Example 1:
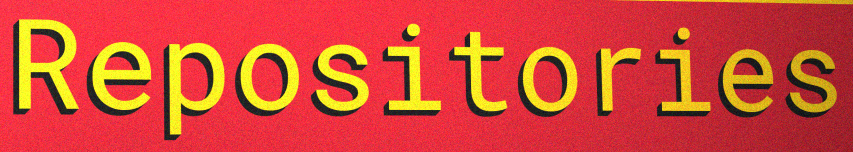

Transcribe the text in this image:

Repositories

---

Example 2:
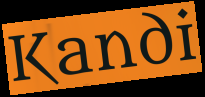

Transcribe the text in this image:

Kandi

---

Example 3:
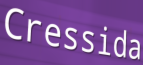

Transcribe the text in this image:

Cressida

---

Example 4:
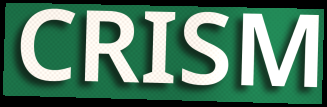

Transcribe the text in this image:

CRISM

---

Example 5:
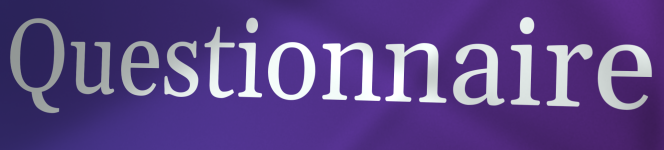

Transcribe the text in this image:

Questionnaire